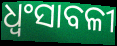
ଧ୍ୱଂସାବଳୀ